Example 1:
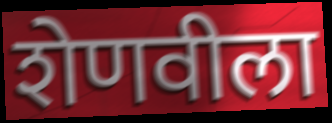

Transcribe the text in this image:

शेणवीला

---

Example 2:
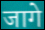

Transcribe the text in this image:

जागे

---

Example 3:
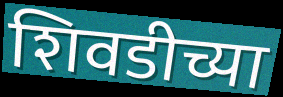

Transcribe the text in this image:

शिवडीच्या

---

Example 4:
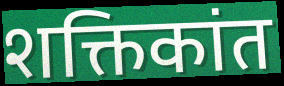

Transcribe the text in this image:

शक्तिकांत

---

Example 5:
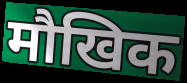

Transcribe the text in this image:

मौखिक